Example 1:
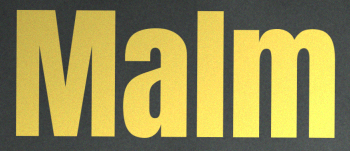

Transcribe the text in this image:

Malm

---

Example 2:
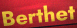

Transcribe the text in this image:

Berthet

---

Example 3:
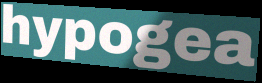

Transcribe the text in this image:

hypogea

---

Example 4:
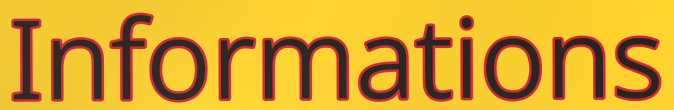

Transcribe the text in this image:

Informations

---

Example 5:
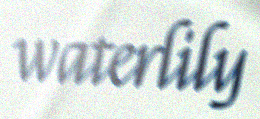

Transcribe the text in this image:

waterlily